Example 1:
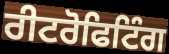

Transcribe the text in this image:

ਰੀਟਰੋਫਿਟਿੰਗ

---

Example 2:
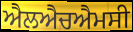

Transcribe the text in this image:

ਐਲਐਚਐਮਸੀ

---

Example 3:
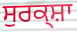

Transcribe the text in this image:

ਸੁਰਕ੍ਸ਼ਾ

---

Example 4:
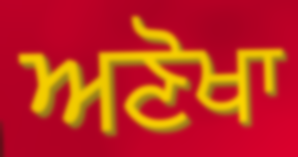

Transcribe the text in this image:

ਅਣੋਖਾ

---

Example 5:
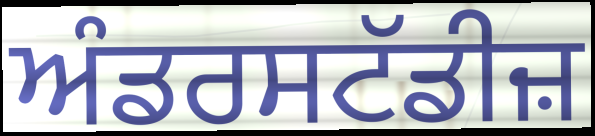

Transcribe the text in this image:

ਅੰਡਰਸਟੱਡੀਜ਼